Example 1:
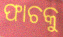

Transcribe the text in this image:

ଫାଚକୁ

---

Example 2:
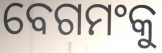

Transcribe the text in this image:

ବେଗମଂକୁ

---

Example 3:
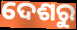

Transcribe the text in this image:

ଦେଶରୁ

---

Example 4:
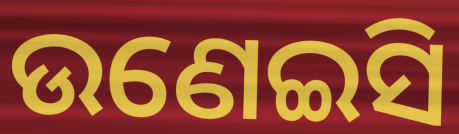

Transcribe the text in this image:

ଉଣେଇସି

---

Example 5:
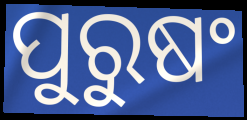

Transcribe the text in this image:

ପୁରୁଷଂ